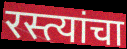
रस्त्यांचा